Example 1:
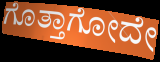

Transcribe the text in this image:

ಗೊತ್ತಾಗೋದೇ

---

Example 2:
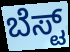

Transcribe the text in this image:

ಬೆಸ್ಟ್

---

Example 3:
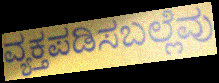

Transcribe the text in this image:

ವ್ಯಕ್ತಪಡಿಸಬಲ್ಲೆವು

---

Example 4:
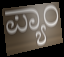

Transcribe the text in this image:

ಪ್ಯಾಂ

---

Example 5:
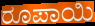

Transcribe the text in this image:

ರೂಪಾಯಿ